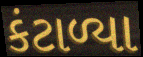
કંટાળ્યા